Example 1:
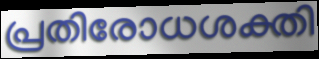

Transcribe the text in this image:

പ്രതിരോധശക്തി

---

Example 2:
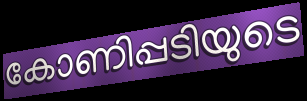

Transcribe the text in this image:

കോണിപ്പടിയുടെ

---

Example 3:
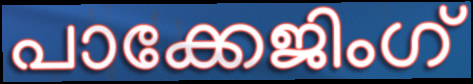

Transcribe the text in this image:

പാക്കേജിംഗ്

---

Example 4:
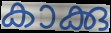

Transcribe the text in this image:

കാക്കു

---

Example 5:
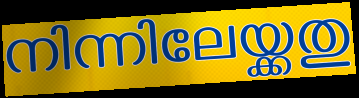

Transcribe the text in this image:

നിന്നിലേയ്ക്കതു